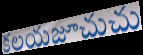
కలయజూచుచు